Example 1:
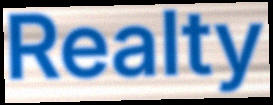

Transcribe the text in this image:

Realty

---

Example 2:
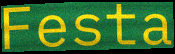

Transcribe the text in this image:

Festa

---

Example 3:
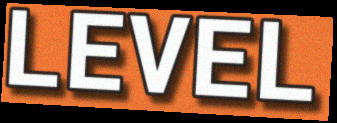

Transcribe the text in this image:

LEVEL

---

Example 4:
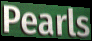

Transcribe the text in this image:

Pearls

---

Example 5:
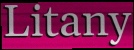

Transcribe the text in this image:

Litany